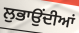
ਲੁਭਾਉਂਦੀਆਂ